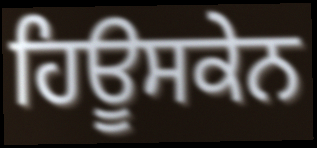
ਹਿਊਸਕੇਨ